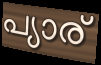
പ്യാര്